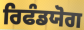
ਰਿਫੰਡਯੋਗ